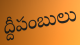
ద్దీపంబులు